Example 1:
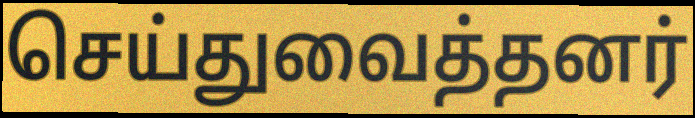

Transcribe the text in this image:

செய்துவைத்தனர்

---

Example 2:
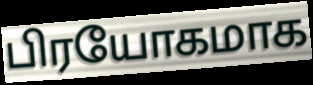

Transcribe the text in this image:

பிரயோகமாக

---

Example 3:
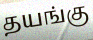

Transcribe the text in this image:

தயங்கு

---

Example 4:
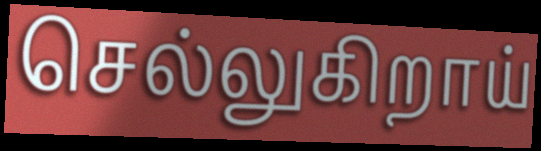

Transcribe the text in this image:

செல்லுகிறாய்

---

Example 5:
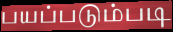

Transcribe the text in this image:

பயப்படும்படி